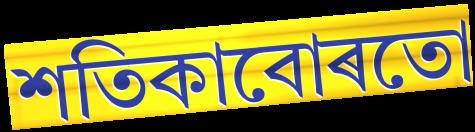
শতিকাবোৰতো